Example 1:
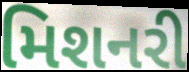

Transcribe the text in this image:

મિશનરી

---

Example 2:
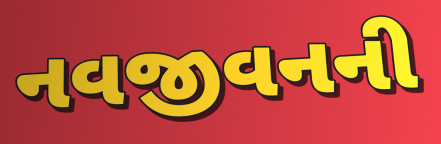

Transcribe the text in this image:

નવજીવનની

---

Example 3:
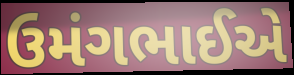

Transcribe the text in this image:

ઉમંગભાઈએ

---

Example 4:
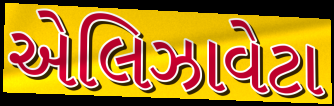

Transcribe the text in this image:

એલિઝાવેટા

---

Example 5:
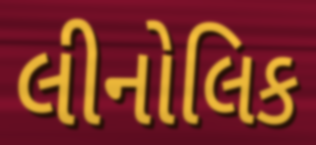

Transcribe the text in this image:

લીનોલિક